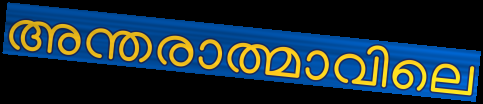
അന്തരാത്മാവിലെ